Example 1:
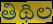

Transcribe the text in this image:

తిథిల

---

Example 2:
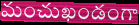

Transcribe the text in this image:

మంచుఖండంగా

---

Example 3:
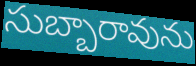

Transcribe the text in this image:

సుబ్బారావును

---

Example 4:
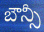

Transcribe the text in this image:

బౌన్సీ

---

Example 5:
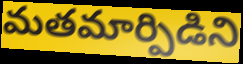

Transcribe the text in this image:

మతమార్పిడిని